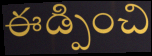
ఈడ్పించి